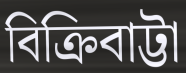
বিক্রিবাট্টা